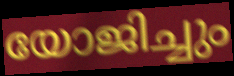
യോജിച്ചും